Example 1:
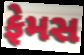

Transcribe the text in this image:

ફેમસ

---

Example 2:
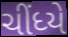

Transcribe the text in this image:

ચીંધ્યે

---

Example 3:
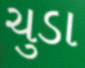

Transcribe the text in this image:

ચુડા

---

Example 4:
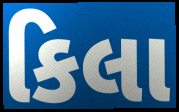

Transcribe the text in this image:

કિલા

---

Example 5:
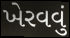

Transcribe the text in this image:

ખેરવવું